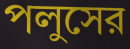
পলুসের